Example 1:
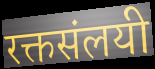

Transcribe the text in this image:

रक्तसंलयी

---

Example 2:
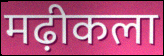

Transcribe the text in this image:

मढ़ीकला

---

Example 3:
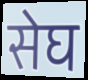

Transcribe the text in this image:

सेघ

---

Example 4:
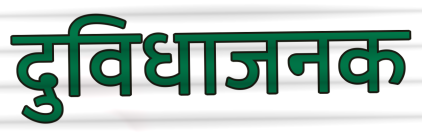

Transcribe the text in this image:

दुविधाजनक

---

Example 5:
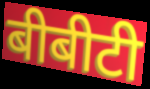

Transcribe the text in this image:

बीबीटी